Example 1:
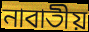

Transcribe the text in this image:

নাবাতীয়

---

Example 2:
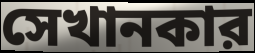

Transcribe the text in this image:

সেখানকার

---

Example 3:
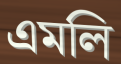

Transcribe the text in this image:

এমলি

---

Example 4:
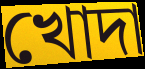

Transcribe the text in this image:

খোদা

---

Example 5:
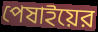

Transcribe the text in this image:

পেষাইয়ের